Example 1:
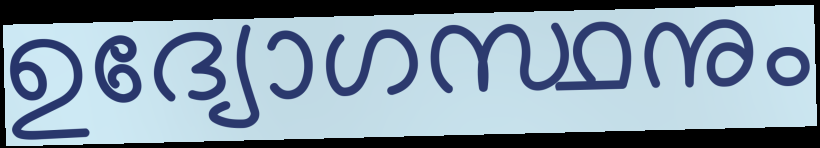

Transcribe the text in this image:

ഉദ്യോഗസ്ഥനും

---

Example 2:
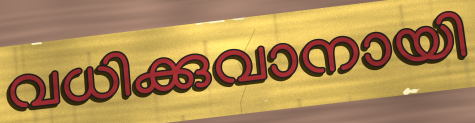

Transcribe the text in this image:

വധിക്കുവാനായി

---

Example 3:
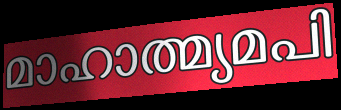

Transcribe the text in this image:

മാഹാത്മ്യമപി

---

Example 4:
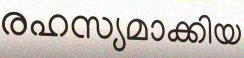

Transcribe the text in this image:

രഹസ്യമാക്കിയ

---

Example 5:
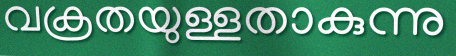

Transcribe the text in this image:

വക്രതയുള്ളതാകുന്നു